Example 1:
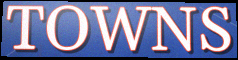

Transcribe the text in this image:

TOWNS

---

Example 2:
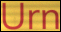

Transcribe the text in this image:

Urn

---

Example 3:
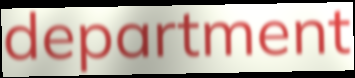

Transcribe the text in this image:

department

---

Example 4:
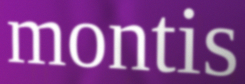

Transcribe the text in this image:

montis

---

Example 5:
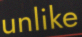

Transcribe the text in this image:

unlike